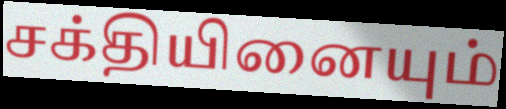
சக்தியினையும்